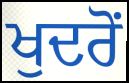
ਖੁਦਰੋਂ